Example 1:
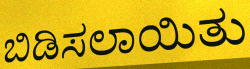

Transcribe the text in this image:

ಬಿಡಿಸಲಾಯಿತು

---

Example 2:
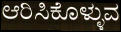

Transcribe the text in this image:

ಆರಿಸಿಕೊಳ್ಳುವ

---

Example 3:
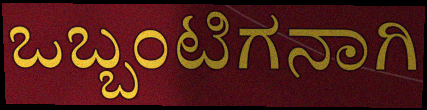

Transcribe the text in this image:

ಒಬ್ಬಂಟಿಗನಾಗಿ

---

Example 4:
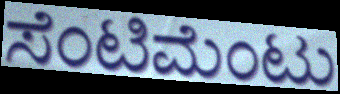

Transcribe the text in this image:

ಸೆಂಟಿಮೆಂಟು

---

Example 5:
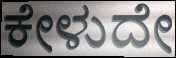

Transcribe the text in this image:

ಕೇಳುದೇ